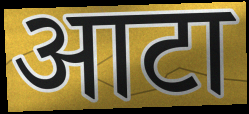
आटा